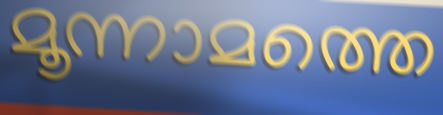
മൂന്നാമത്തെ